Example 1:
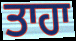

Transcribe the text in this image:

ਤਾਹਾ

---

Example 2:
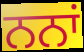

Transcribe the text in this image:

ਨਨਾਂ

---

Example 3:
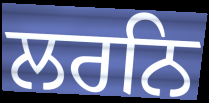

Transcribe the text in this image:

ਲਰਨਿ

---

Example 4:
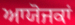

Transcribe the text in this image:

ਆਯੋਜਕਾਂ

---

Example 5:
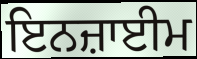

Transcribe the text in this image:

ਇਨਜ਼ਾਈਮ